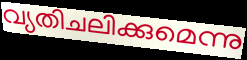
വ്യതിചലിക്കുമെന്നു